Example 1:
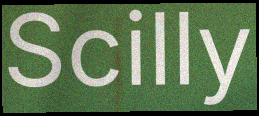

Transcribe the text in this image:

Scilly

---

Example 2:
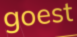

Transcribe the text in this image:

goest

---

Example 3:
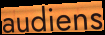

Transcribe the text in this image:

audiens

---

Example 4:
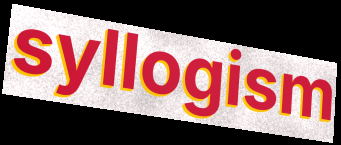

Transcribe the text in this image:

syllogism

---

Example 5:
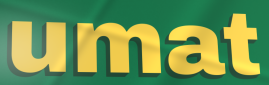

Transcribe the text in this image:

umat